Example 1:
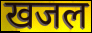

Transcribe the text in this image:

खजल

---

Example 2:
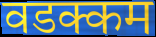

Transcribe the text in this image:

वडक्कम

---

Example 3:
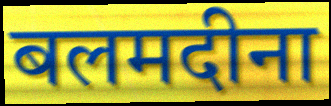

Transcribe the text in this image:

बलमदीना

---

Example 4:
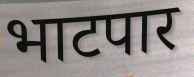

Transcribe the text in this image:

भाटपार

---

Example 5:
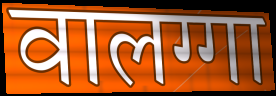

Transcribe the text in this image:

वालग्गा